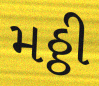
મઠ્ઠી